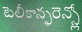
టెలీకాన్ఫరెన్స్లో